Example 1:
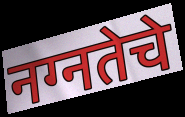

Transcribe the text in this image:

नग्नतेचे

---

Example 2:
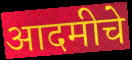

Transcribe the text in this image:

आदमीचे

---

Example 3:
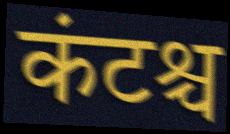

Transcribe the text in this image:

कंटश्च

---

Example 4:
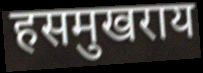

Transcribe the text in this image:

हसमुखराय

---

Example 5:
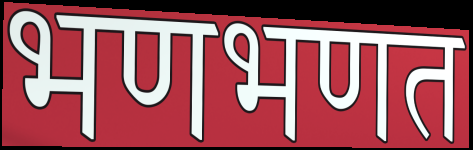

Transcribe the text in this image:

भणभणत